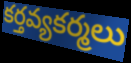
కర్తవ్యకర్మలు